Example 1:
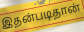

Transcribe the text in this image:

இதன்படிதான்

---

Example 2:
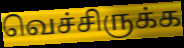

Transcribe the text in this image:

வெச்சிருக்க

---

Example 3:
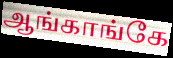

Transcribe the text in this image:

ஆங்காங்கே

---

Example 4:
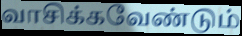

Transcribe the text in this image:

வாசிக்கவேண்டும்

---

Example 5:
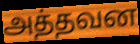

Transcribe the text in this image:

அத்தவன